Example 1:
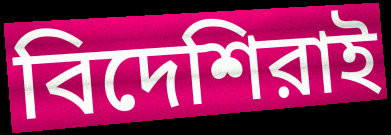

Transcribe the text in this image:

বিদেশিরাই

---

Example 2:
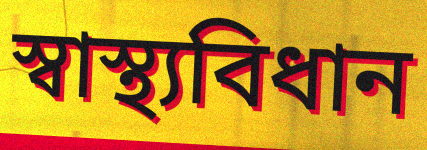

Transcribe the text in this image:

স্বাস্থ্যবিধান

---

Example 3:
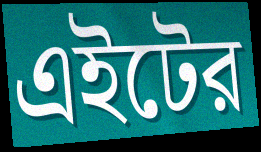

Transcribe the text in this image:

এইটের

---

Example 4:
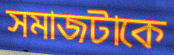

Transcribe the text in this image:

সমাজটাকে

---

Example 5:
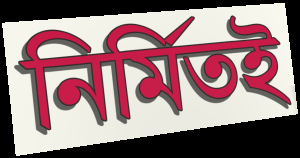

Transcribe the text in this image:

নির্মিতই